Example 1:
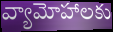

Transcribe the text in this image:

వ్యామోహాలకు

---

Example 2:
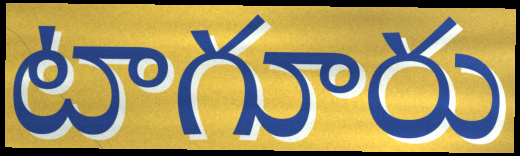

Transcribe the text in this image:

టాగూరు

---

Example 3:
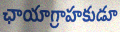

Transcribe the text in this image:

ఛాయాగ్రాహకుడూ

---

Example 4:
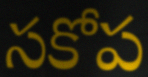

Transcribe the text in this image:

సకోప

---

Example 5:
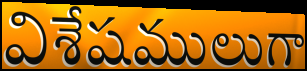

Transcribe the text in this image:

విశేషములుగా